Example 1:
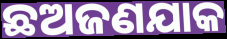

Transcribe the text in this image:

ଛଅଜଣଯାକ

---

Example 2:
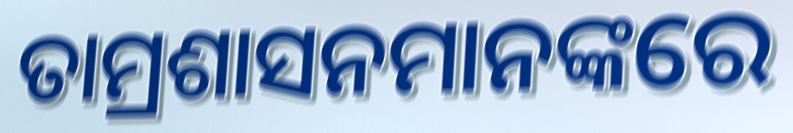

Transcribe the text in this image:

ତାମ୍ରଶାସନମାନଙ୍କରେ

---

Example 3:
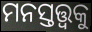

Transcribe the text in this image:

ମନସ୍ତତ୍ତ୍ୱକୁ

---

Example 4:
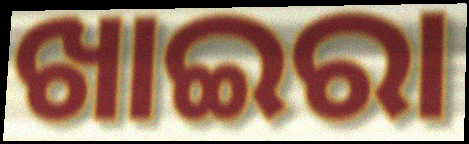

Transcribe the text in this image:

ଖାଇରା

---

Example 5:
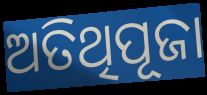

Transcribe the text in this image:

ଅତିଥିପୂଜା